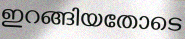
ഇറങ്ങിയതോടെ